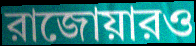
রাজোয়ারও